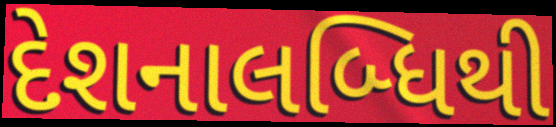
દેશનાલબ્ધિથી